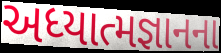
અધ્યાત્મજ્ઞાનના